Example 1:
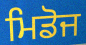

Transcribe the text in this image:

ਮਿਡੋਜ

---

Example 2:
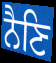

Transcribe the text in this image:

ਨੈਣਿ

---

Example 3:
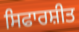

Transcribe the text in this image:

ਸਿਫਾਰਸ਼ੀਤ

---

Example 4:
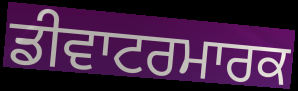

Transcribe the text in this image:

ਡੀਵਾਟਰਮਾਰਕ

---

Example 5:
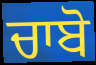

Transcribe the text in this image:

ਚਾਬੋ